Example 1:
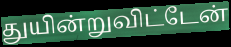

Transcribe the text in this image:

துயின்றுவிட்டேன்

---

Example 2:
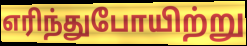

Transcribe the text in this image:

எரிந்துபோயிற்று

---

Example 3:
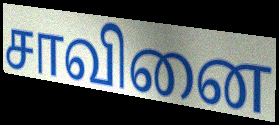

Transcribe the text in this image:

சாவினை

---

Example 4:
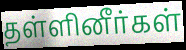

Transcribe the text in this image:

தள்ளினீர்கள்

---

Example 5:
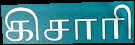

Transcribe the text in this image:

கிசாரி